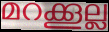
മറക്കൂല്ല